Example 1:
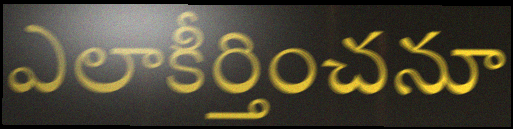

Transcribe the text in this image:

ఎలాకీర్తించనూ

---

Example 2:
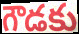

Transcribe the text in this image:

గౌడకు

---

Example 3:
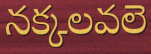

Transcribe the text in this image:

నక్కలవలె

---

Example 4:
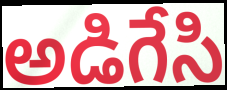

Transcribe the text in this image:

అడిగేసి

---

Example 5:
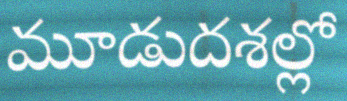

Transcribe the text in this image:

మూడుదశల్లో